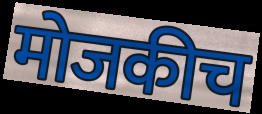
मोजकीच